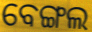
ବେଙ୍ଗଲ